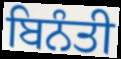
ਬਿਨੰਤੀ